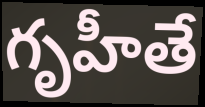
గృహీతే